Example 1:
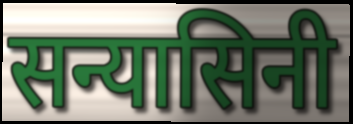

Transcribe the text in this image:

सन्यासिनी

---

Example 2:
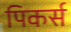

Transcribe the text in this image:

पिकर्स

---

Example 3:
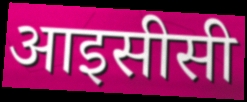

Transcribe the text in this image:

आइसीसी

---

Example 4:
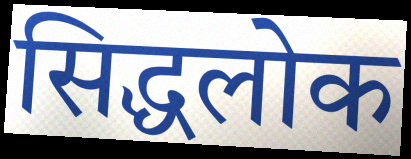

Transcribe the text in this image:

सिद्धलोक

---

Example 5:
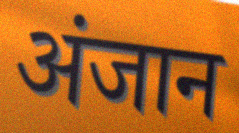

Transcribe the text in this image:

अंजान